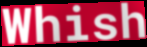
Whish